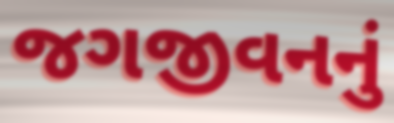
જગજીવનનું